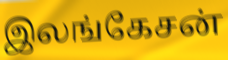
இலங்கேசன்